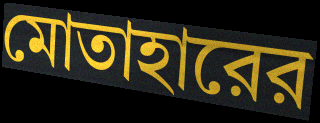
মোতাহারের